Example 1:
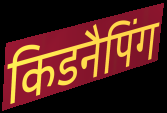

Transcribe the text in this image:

किडनैपिंग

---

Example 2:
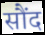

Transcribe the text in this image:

सौंद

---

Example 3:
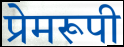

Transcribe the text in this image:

प्रेमरूपी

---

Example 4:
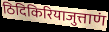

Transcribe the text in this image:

ठिदिकिरियाजुत्ताणं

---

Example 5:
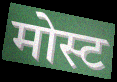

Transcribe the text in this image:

मोस्ट